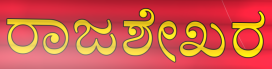
ರಾಜಶೇಖರ